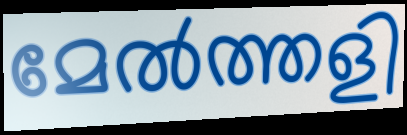
മേൽത്തളി